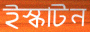
ইস্কাটন